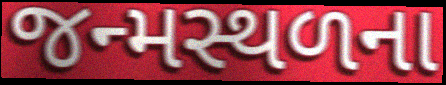
જન્મસ્થળના